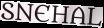
SNEHAL